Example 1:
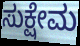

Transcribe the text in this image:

ಸುಕ್ಷೇಮ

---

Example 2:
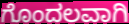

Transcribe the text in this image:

ಗೊಂದಲವಾಗಿ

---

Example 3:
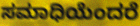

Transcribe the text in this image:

ಸಮಾಧಿಯೆಂದರೆ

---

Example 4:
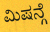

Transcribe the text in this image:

ಮಿಷನ್ಗೆ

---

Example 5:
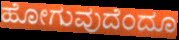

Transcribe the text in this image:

ಹೋಗುವುದೆಂದೂ